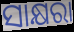
ସାକ୍ଷରା